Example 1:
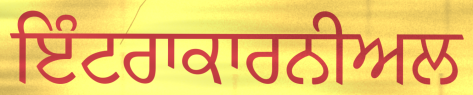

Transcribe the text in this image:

ਇੰਟਰਾਕਾਰਨੀਅਲ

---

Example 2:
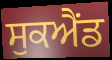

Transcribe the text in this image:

ਸੁਕਐਂਡ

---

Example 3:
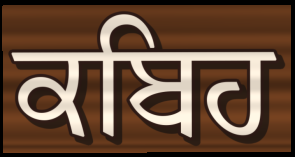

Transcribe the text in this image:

ਕਬਿਹ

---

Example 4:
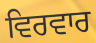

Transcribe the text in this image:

ਵਿਰਵਾਰ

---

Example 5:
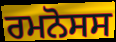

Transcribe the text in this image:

ਰਮਨੋਸਸ